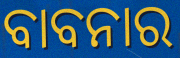
ବାବନାର